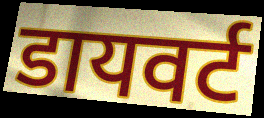
डायवर्ट